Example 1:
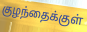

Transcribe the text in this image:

குழந்தைக்குள்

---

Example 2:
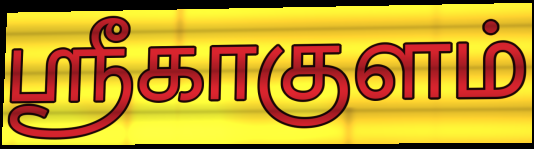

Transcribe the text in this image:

ஸ்ரீகாகுளம்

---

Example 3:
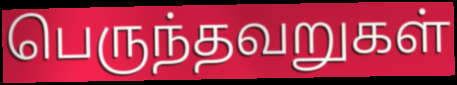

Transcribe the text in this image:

பெருந்தவறுகள்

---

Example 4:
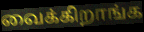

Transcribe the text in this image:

வைக்கிறாங்க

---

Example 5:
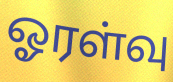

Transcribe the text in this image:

ஓரள்வு